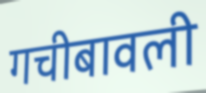
गचीबावली